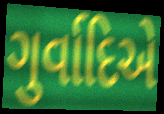
ગુર્વાદિએ